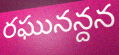
రఘునన్దన